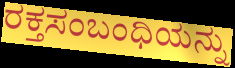
ರಕ್ತಸಂಬಂಧಿಯನ್ನು